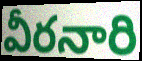
వీరనారి